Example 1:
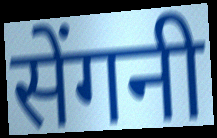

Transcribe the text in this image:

सेंगनी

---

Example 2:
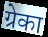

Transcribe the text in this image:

ग्रेका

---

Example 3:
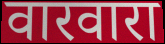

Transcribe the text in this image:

वारवारा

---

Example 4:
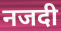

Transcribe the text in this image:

नजदी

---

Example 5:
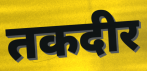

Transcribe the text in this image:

तकदीर